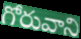
గోరువాని